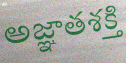
అజ్ఞాతశక్తి